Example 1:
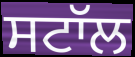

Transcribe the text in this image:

ਸਟਾੱਲ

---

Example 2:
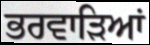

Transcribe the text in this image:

ਭਰਵਾੜਿਆਂ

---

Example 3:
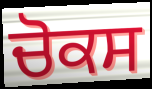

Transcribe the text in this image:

ਚੋਕਸ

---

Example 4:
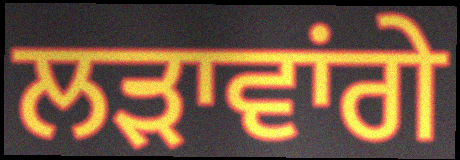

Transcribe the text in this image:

ਲੜਾਵਾਂਗੇ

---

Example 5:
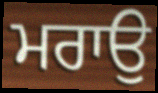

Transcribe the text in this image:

ਮਰਾਉ